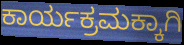
ಕಾರ್ಯಕ್ರಮಕ್ಕಾಗಿ